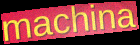
machina